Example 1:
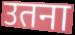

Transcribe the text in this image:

उतना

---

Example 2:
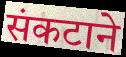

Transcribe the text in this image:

संकटाने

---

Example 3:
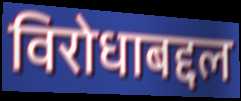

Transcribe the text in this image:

विरोधाबद्दल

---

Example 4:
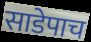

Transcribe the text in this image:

साडेपाच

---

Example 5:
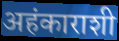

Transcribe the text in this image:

अहंकाराशी